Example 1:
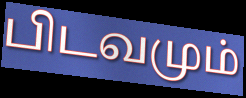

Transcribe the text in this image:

பிடவமும்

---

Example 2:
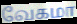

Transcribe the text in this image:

வேகமா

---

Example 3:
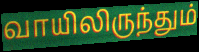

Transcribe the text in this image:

வாயிலிருந்தும்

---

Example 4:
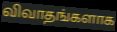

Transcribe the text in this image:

விவாதங்களாக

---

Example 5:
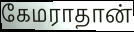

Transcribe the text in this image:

கேமராதான்